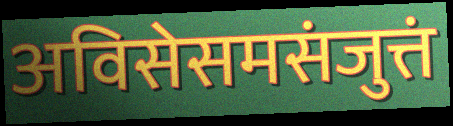
अविसेसमसंजुत्तं